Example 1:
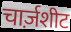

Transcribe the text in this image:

चार्ज़शीट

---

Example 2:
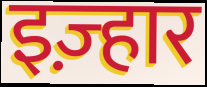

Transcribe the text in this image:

इज़्हार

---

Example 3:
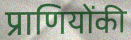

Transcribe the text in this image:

प्राणियोंकी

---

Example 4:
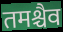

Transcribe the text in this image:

तमश्चैव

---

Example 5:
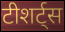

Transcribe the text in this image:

टीशर्ट्स